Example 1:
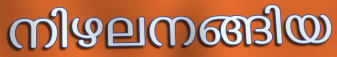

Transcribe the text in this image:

നിഴലനങ്ങിയ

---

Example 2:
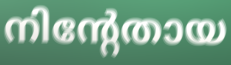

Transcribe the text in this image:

നിന്റേതായ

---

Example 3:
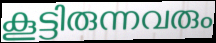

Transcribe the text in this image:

കൂട്ടിരുന്നവരും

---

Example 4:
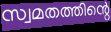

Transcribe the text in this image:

സ്വമതത്തിന്റെ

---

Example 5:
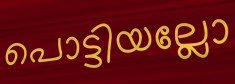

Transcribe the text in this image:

പൊട്ടിയല്ലോ